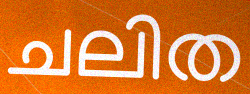
ചലിത